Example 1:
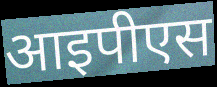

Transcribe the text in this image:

आइपीएस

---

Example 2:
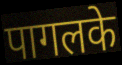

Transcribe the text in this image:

पागलके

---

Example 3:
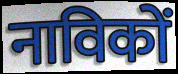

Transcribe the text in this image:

नाविकों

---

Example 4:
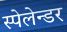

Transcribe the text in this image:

स्पेलेन्डर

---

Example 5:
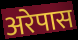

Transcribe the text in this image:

अरेपास